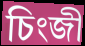
চিংজী